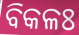
ବିକଳଃ